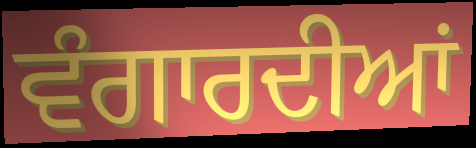
ਵੰਗਾਰਦੀਆਂ